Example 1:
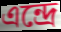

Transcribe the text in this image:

এন্দ্ৰে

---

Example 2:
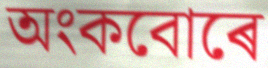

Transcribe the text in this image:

অংকবোৰে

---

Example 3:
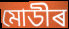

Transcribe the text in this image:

মোডীৰ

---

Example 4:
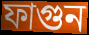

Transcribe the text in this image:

ফাগুন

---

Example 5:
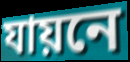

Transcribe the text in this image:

যায়নে